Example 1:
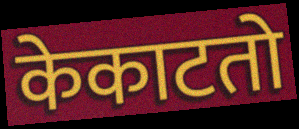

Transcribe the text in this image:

केकाटतो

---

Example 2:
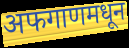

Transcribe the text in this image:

अफगाणमधून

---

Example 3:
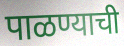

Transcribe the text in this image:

पाळण्याची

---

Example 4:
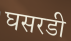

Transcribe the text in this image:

घसरडी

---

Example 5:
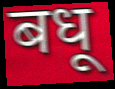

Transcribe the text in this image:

बधू